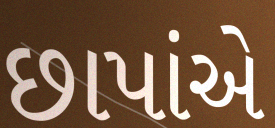
છાપાંએ